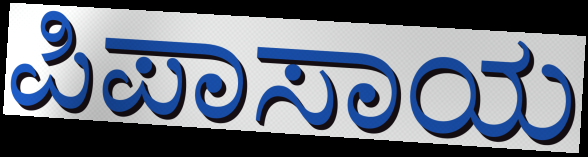
ಪಿಪಾಸಾಯ